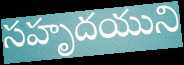
సహృదయుని